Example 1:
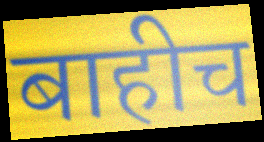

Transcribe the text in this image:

बाहीच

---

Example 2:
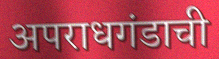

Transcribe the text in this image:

अपराधगंडाची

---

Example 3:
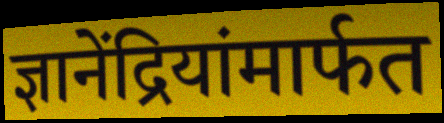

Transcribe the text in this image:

ज्ञानेंद्रियांमार्फत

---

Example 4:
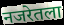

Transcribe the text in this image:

नजरेतला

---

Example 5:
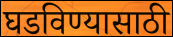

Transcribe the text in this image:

घडविण्यासाठी